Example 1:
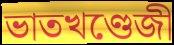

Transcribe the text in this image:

ভাতখণ্ডেজী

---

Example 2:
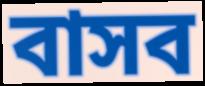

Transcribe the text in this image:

বাসব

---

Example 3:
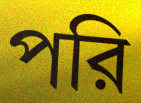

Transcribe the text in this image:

পরি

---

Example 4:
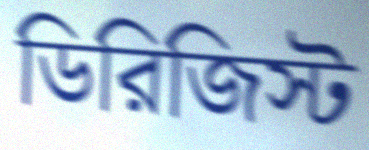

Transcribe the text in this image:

ডিরিজিস্ট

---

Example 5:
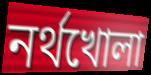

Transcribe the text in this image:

নর্থখোলা